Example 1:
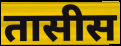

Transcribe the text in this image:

तासीस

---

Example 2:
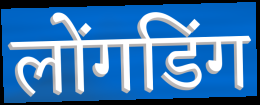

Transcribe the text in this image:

लोंगडिंग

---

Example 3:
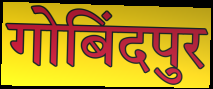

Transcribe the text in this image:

गोबिंदपुर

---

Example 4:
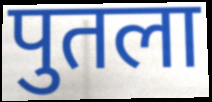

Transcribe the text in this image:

पुतला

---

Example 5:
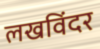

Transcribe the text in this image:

लखविंदर